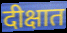
दीक्षात